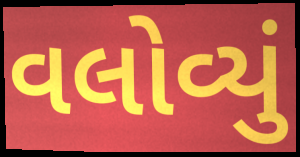
વલોવ્યું